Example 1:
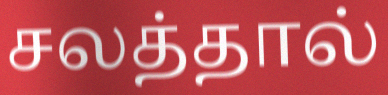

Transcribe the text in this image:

சலத்தால்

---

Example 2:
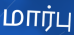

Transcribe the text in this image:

மார்பு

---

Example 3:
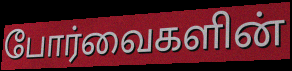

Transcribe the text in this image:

போர்வைகளின்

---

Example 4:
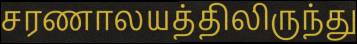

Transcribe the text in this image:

சரணாலயத்திலிருந்து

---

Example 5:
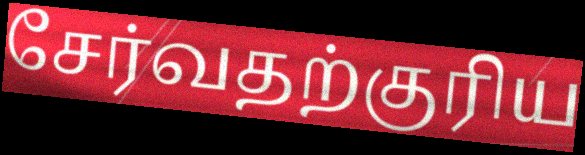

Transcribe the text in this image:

சேர்வதற்குரிய